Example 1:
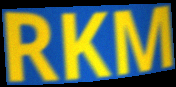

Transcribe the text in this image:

RKM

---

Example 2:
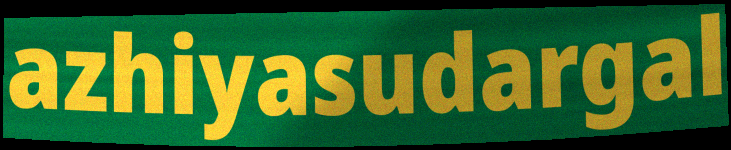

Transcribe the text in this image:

azhiyasudargal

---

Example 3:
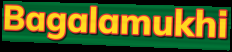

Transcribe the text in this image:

Bagalamukhi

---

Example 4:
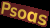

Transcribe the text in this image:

Psoas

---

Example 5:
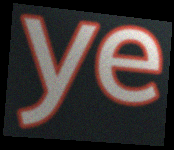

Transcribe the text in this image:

ye